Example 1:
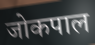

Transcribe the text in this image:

जोकपाल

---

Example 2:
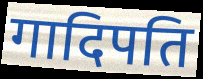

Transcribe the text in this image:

गादिपति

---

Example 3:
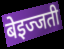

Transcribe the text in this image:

बेइज्जती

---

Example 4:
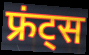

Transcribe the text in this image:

फ्रंट्स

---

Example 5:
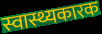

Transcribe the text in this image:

स्वास्थ्यकारक